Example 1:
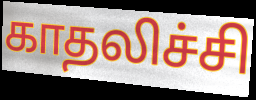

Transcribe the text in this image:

காதலிச்சி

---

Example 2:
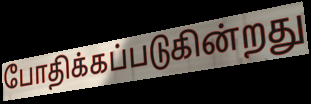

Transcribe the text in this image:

போதிக்கப்படுகின்றது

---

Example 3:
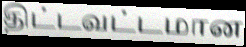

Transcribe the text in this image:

திட்டவட்டமான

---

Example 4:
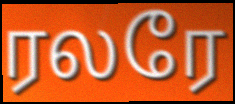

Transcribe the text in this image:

ரலரே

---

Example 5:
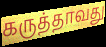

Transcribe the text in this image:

கருத்தாவது